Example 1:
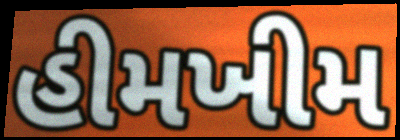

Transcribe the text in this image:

હીમખીમ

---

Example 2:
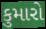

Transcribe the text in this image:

કુમારો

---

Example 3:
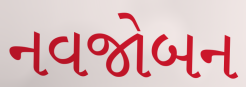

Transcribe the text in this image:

નવજોબન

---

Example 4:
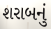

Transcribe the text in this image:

શરાબનું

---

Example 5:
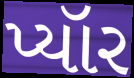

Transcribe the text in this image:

પ્યૉર